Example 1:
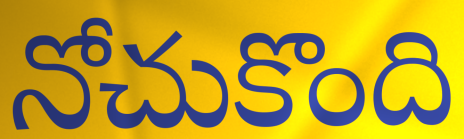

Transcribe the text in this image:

నోచుకొంది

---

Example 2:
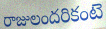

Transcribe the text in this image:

రాజులందరికంటె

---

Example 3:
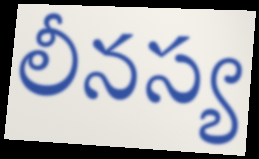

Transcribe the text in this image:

లీనస్య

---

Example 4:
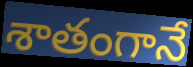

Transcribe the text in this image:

శాతంగానే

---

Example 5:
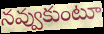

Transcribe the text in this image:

నవ్వుకుంటూ